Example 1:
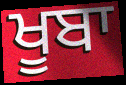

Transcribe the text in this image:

ਖੂਬਾ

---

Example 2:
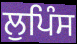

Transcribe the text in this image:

ਲੁਪਿੰਸ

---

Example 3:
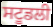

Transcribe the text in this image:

ਸਟੂਡਲੀ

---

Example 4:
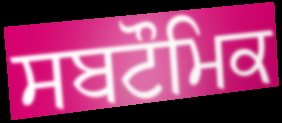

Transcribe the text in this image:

ਸਬਟੌਮਿਕ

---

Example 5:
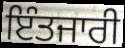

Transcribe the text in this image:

ਇੰਤਜਾਰੀ